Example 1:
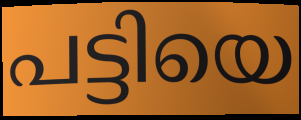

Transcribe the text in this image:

പട്ടിയെ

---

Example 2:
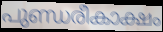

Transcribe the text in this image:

പുണ്ഡരീകാക്ഷം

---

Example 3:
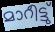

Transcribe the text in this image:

മാറീട്ടു്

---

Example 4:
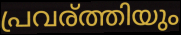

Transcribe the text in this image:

പ്രവര്ത്തിയും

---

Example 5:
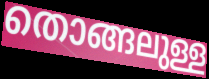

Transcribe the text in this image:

തൊങ്ങലുള്ള